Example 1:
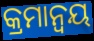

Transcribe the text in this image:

କ୍ରମାନ୍ୱୟ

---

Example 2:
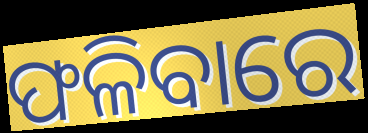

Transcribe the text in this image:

ଫଳିବାରେ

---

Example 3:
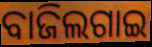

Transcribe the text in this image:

ବାଜିଲଗାଇ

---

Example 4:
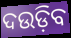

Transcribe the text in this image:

ଦଉଡ଼ିବ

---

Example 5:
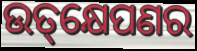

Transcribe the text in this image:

ଉତ୍‌କ୍ଷେପଣର